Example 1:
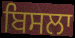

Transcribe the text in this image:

ਬਿਸਲਾ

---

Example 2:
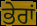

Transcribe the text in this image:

ਭੇਰਾਂ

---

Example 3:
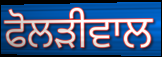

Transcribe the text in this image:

ਫੋਲੜੀਵਾਲ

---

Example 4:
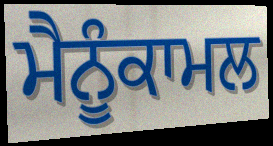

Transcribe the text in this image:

ਮੈਨੂੰਕਾਮਲ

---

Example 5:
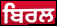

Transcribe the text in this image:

ਬਿਰਲ